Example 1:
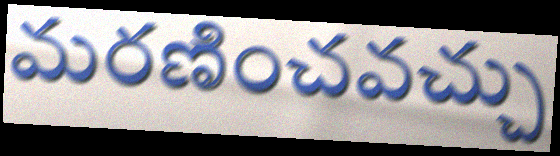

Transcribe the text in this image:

మరణించవచ్చు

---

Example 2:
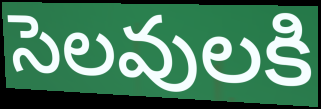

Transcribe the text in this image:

సెలవులకి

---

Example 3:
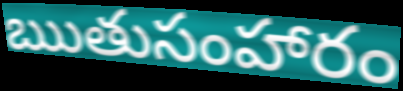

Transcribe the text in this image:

ఋతుసంహారం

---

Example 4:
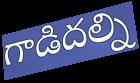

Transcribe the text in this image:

గాడిదల్ని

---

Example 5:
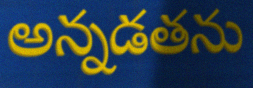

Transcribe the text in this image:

అన్నడతను